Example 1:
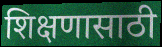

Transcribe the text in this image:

शिक्षणासाठी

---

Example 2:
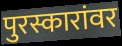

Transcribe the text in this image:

पुरस्कारांवर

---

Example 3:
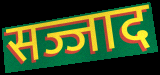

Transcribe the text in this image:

सज्जाद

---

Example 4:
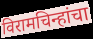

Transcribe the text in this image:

विरामचिन्हांचा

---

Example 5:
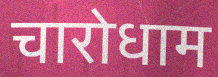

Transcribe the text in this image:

चारोधाम